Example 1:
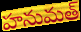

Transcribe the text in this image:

హనుమత్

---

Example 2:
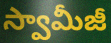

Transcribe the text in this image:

స్వామీజీ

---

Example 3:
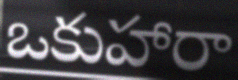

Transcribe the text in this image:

ఒకుహారా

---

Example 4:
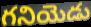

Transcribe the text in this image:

గనియెడు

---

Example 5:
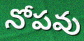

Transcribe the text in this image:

నోపవు